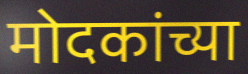
मोदकांच्या